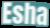
Esha